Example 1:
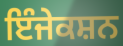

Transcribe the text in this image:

ਇੰਜੇਕਸ਼ਨ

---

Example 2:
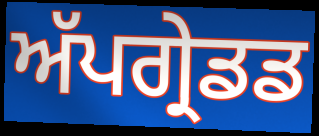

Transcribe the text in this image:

ਅੱਪਗ੍ਰੇਡਡ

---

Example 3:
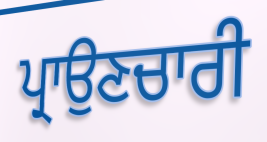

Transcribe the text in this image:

ਪ੍ਰਾਉਣਚਾਰੀ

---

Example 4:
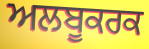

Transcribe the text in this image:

ਅਲਬੂਕਰਕ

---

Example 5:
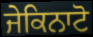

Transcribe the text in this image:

ਜੇਕਿਨਾਟੋ